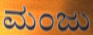
ಮಂಜು